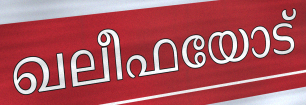
ഖലീഫയോട്